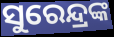
ସୁରେନ୍ଦ୍ରଙ୍କ